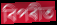
বিপৰীত